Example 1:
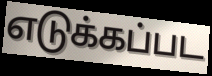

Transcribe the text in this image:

எடுக்கப்பட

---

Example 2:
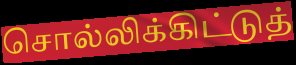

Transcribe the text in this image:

சொல்லிக்கிட்டுத்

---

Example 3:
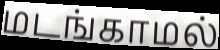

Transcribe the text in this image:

மடங்காமல்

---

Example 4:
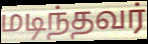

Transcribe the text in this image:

மடிந்தவர்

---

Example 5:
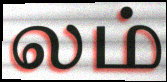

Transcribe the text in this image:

லம்